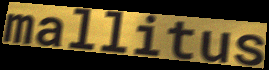
mallitus